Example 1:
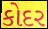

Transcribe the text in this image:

કોદર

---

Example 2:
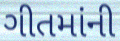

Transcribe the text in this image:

ગીતમાંની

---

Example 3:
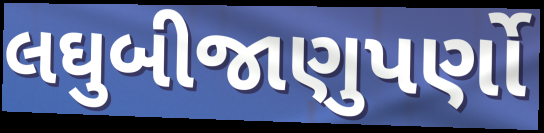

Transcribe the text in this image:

લઘુબીજાણુપર્ણો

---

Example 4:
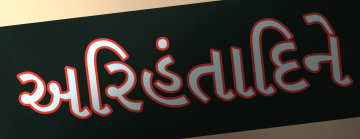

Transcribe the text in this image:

અરિહંતાદિને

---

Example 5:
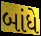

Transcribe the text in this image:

બાંધે